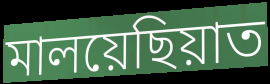
মালয়েছিয়াত